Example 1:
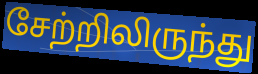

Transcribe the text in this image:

சேற்றிலிருந்து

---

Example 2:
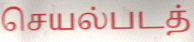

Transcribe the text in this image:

செயல்படத்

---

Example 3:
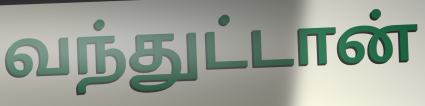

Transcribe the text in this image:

வந்துட்டான்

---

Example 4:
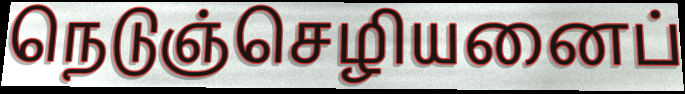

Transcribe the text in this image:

நெடுஞ்செழியனைப்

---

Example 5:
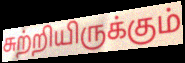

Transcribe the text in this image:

சுற்றியிருக்கும்